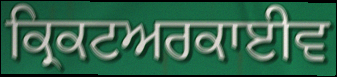
ਕ੍ਰਿਕਟਅਰਕਾਈਵ